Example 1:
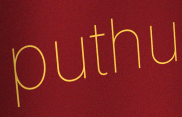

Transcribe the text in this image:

puthu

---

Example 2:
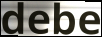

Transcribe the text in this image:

debe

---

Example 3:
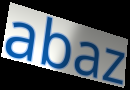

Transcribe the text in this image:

abaz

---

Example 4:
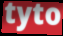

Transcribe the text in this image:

tyto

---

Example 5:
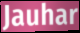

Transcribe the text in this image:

Jauhar